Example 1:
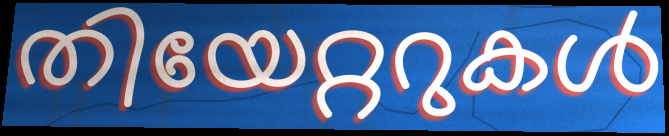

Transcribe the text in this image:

തിയേറ്ററുകൾ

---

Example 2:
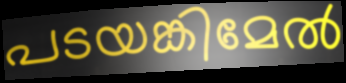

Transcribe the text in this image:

പടയങ്കിമേൽ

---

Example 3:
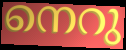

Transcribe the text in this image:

നെറു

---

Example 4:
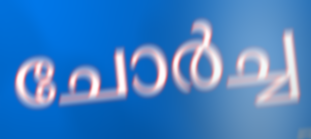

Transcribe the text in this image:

ചോർച്ച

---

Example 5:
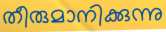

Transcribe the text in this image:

തീരുമാനിക്കുന്നു